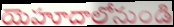
యెహూదాలోనుండి